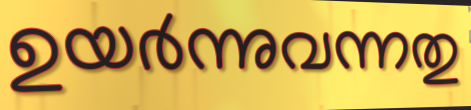
ഉയർന്നുവന്നതു